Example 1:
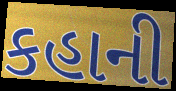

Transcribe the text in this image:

કહાની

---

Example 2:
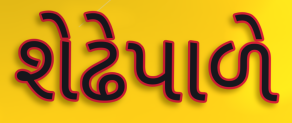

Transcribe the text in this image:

શેઢેપાળે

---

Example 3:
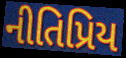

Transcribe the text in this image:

નીતિપ્રિય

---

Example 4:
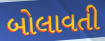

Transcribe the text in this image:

બોલાવતી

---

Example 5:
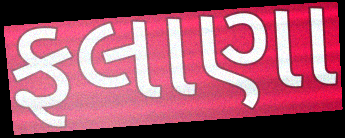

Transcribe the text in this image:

ફલાણા